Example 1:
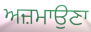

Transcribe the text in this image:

ਅਜ਼ਮਾਉਣਾ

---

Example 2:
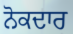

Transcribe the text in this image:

ਨੋਕਦਾਰ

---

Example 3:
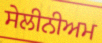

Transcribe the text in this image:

ਸੇਲੀਨੀਅਮ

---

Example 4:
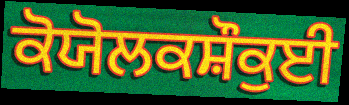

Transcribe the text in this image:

ਕੋਯੋਲਕਸ਼ੌਕੁਈ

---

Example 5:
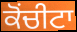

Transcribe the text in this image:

ਕੋਂਚੀਟਾ